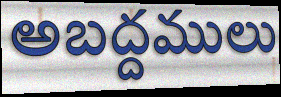
అబద్దములు